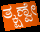
ತ್ಕ್ಷಣ್ವೇ